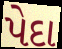
પેદા